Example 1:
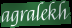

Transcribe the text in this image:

agralekh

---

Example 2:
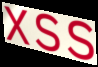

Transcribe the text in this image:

xss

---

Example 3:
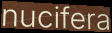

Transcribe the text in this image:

nucifera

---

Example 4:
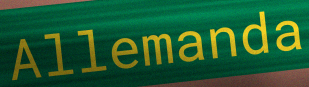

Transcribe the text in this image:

Allemanda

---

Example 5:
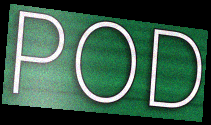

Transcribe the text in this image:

POD